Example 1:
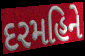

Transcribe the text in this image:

દરમહિને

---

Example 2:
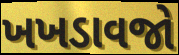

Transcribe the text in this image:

ખખડાવજો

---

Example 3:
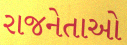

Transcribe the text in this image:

રાજનેતાઓ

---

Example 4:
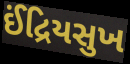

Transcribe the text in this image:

ઈંદ્રિયસુખ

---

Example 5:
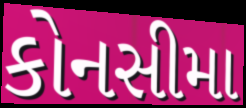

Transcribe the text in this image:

કોનસીમા